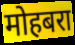
मोहबरा